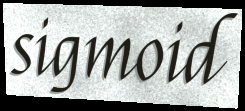
sigmoid